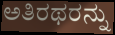
ಅತಿರಥರನ್ನು